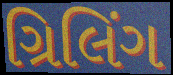
ગ્રિલિંગ